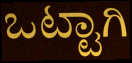
ಒಟ್ಟಾಗಿ